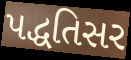
પદ્ધતિસર